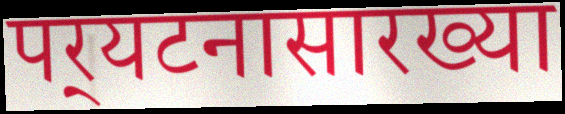
पर्यटनासारख्या